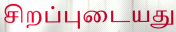
சிறப்புடையது